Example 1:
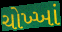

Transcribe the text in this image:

ચોખ્ખાં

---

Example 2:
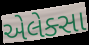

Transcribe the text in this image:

એલેક્સા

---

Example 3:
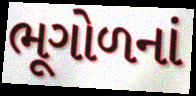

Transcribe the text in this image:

ભૂગોળનાં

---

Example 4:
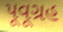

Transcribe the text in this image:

પૂવૂગ્રહ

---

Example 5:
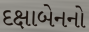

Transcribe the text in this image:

દક્ષાબેનનો